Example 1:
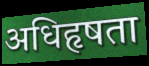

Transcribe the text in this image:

अधिहृषता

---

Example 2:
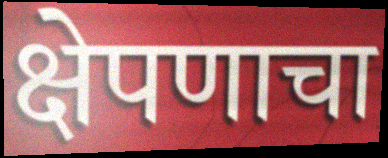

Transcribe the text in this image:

क्षेपणाचा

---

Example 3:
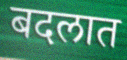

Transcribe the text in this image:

बदलात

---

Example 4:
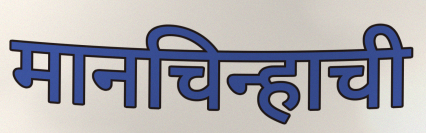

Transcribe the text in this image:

मानचिन्हाची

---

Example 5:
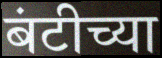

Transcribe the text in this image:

बंटीच्या